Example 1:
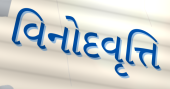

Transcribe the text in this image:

વિનોદવૃત્તિ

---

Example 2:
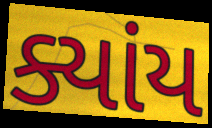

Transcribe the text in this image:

ક્યાંય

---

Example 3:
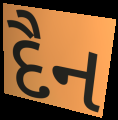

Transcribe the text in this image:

દૈન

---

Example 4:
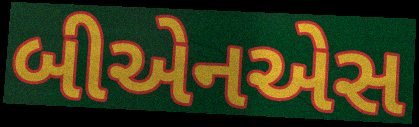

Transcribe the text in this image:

બીએનએસ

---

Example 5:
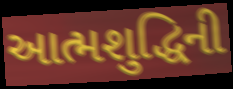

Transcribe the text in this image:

આત્મશુદ્ધિની